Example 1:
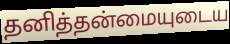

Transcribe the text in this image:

தனித்தன்மையுடைய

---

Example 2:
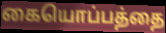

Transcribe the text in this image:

கையொப்பத்தை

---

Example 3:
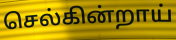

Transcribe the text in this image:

செல்கின்றாய்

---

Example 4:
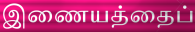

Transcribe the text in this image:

இணையத்தைப்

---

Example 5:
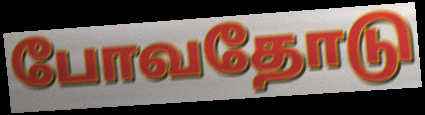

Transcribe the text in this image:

போவதோடு